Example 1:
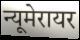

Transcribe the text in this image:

न्यूमेरायर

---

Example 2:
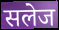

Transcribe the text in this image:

सलेज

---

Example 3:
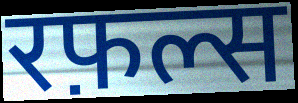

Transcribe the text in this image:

रफ़ल्स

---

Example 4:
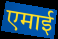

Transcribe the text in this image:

एमाई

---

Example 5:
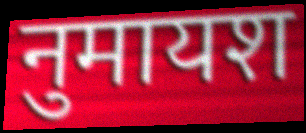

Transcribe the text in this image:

नुमायश